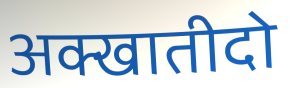
अक्खातीदो